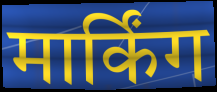
मार्किंग